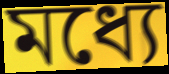
মধ্যে